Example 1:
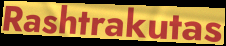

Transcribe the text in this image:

Rashtrakutas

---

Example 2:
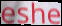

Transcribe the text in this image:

eshe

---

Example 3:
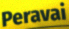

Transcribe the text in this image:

Peravai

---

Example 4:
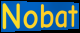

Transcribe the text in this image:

Nobat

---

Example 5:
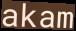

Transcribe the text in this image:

akam